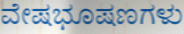
ವೇಷಭೂಷಣಗಳು